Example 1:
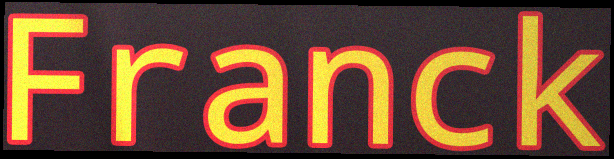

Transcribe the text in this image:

Franck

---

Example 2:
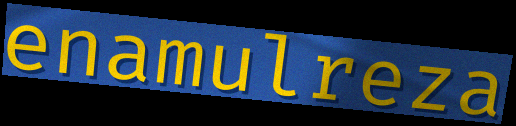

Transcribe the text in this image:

enamulreza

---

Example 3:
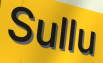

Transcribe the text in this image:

Sullu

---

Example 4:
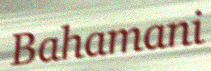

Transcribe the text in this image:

Bahamani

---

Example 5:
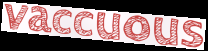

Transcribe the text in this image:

vaccuous